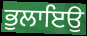
ਭੁਲਾਇਉ